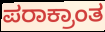
ಪರಾಕ್ರಾಂತ